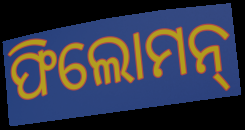
ଫିଲୋମନ୍